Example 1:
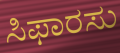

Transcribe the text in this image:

ಸಿಫಾರಸು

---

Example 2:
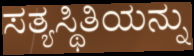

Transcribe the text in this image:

ಸತ್ಯಸ್ಥಿತಿಯನ್ನು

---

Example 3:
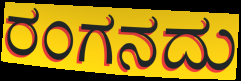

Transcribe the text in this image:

ರಂಗನದು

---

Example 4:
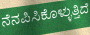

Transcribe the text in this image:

ನೆನಪಿಸಿಕೊಳ್ಳುತ್ತಿದೆ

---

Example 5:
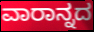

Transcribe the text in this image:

ವಾರಾನ್ನದ